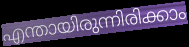
എന്തായിരുന്നിരിക്കാം